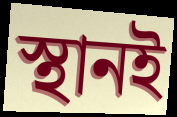
স্থানই